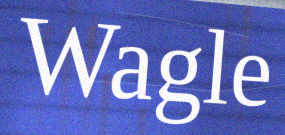
Wagle